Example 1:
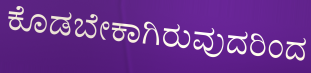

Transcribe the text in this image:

ಕೊಡಬೇಕಾಗಿರುವುದರಿಂದ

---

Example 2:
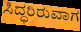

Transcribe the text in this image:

ಸಿದ್ಧರಿರುವಾಗ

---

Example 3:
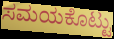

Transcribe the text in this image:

ಸಮಯಕೊಟ್ಟು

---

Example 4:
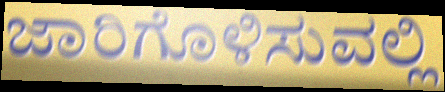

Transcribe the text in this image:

ಜಾರಿಗೊಳಿಸುವಲ್ಲಿ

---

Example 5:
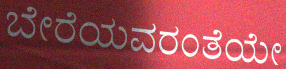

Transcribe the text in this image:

ಬೇರೆಯವರಂತೆಯೇ